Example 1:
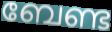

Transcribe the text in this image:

ബേണ്ട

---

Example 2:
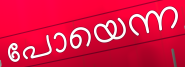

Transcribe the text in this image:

പോയെന്ന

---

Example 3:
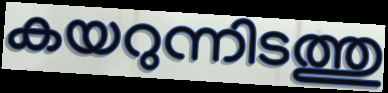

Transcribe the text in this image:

കയറുന്നിടത്തു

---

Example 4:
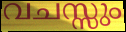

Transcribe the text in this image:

വചസ്സും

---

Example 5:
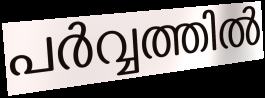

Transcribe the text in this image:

പർവ്വത്തിൽ